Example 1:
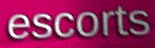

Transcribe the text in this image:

escorts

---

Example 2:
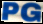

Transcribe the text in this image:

PG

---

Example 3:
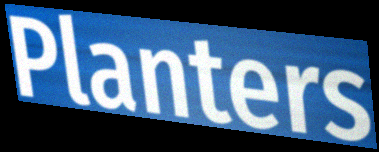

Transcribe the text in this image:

Planters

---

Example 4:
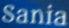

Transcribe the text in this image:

Sania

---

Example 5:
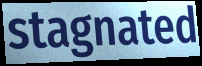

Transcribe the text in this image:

stagnated